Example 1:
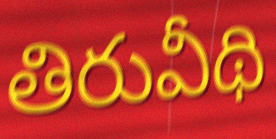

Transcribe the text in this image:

తిరువీథి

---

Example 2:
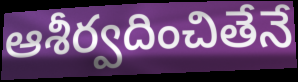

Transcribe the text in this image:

ఆశీర్వదించితేనే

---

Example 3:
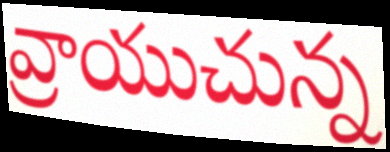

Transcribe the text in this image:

వ్రాయుచున్న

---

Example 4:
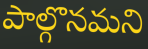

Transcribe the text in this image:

పాల్గొనమని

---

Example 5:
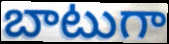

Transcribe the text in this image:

బాటుగా